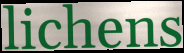
lichens